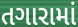
તગારામાં